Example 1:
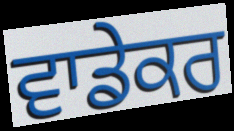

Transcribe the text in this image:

ਵਾਡੇਕਰ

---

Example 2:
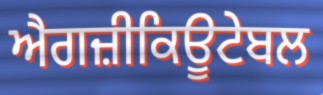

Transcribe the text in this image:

ਐਗਜ਼ੀਕਿਊਟੇਬਲ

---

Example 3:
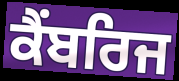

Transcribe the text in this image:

ਕੈਂਬਰਿਜ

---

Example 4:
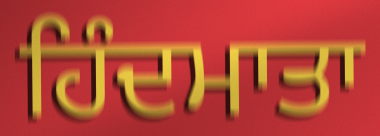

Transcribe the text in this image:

ਹਿੰਦਮਾਤਾ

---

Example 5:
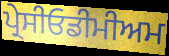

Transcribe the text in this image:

ਪ੍ਰੇਸੀਓਡੀਮੀਅਮ